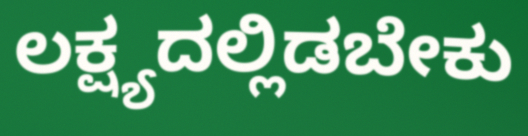
ಲಕ್ಷ್ಯದಲ್ಲಿಡಬೇಕು